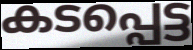
കടപ്പെട്ട